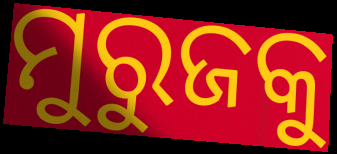
ମୁରୁଜକୁ